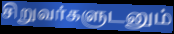
சிறுவர்களுடனும்